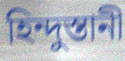
হিন্দুস্তানী